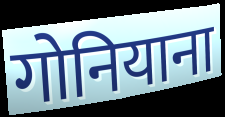
गोनियाना